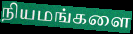
நியமங்களை